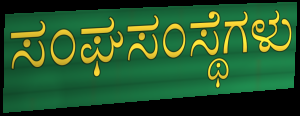
ಸಂಘಸಂಸ್ಥೆಗಳು